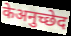
केअनुच्छेद